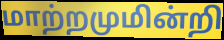
மாற்றமுமின்றி